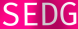
SEDG